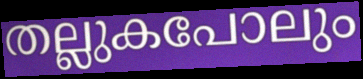
തല്ലുകപോലും